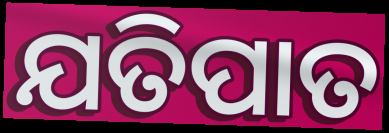
ଯତିପାତ